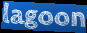
lagoon